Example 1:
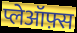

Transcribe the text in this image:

प्लेऑफ़्स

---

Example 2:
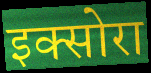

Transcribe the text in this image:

इक्सोरा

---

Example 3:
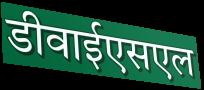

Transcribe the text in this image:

डीवाईएसएल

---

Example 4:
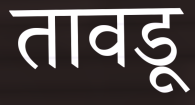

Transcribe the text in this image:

तावडू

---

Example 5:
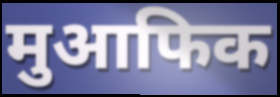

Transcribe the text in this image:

मुआफिक